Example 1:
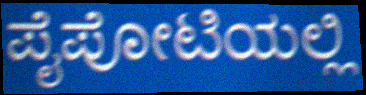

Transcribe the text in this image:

ಪೈಪೋಟಿಯಲ್ಲಿ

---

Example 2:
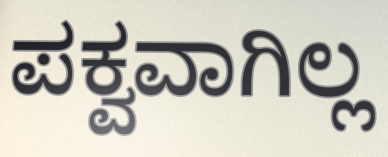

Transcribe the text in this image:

ಪಕ್ವವಾಗಿಲ್ಲ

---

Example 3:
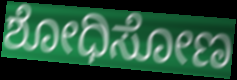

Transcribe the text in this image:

ಶೋಧಿಸೋಣ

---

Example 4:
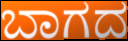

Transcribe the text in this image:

ಬಾಗದ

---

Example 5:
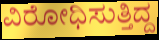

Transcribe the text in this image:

ವಿರೋಧಿಸುತ್ತಿದ್ದ